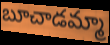
బూచాడమ్మా